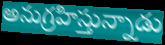
అనుగ్రహిస్తున్నాడు